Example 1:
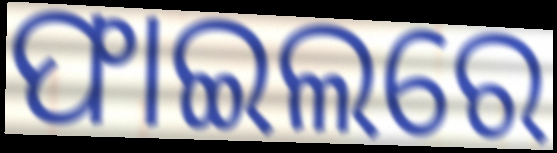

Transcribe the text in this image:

ଫାଇଲରେ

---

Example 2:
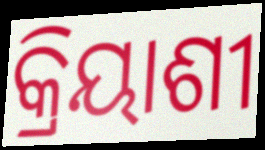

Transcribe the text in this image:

କ୍ରିୟାଶୀ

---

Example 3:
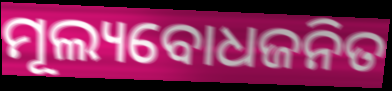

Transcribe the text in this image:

ମୂଲ୍ୟବୋଧଜନିତ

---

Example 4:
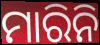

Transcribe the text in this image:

ମାରିନି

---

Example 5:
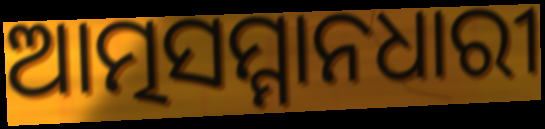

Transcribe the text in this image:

ଆତ୍ମସମ୍ମାନଧାରୀ